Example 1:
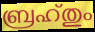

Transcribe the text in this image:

ബ്രഹ്തും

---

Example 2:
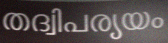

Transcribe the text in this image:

തദ്വിപര്യയം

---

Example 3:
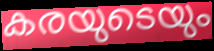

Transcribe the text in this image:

കരയുടെയും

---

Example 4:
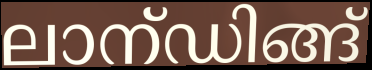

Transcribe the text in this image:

ലാന്ഡിങ്ങ്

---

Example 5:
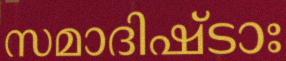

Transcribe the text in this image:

സമാദിഷ്ടാഃ